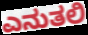
ಎನುತಲಿ